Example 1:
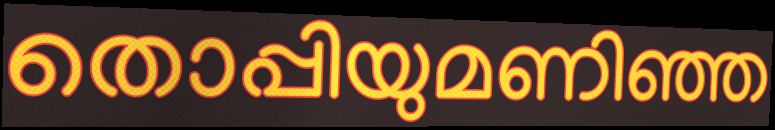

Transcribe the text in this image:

തൊപ്പിയുമണിഞ്ഞ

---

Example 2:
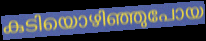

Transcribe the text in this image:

കുടിയൊഴിഞ്ഞുപോയ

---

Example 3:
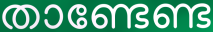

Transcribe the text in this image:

താണ്ടേണ്ട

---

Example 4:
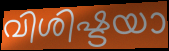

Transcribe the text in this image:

വിശിഷ്ടയാ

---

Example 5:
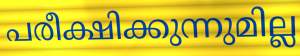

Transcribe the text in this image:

പരീക്ഷിക്കുന്നുമില്ല